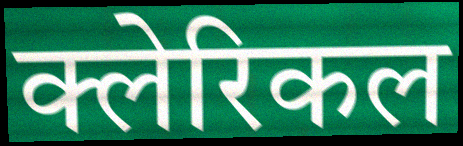
क्लेरिकल